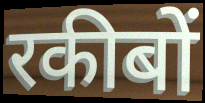
रकीबों